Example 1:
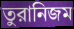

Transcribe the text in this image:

তুরানিজম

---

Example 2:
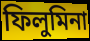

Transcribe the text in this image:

ফিলুমিনা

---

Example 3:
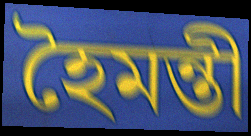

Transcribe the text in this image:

হৈমন্তী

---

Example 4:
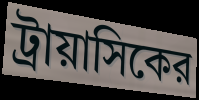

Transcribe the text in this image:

ট্রায়াসিকের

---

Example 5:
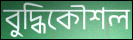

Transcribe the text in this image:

বুদ্ধিকৌশল